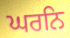
ਘਰਨਿ